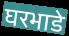
घरभाडे